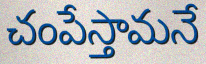
చంపేస్తామనే